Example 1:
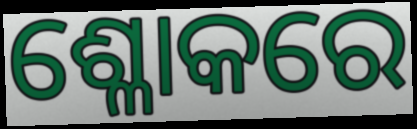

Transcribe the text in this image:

ଶ୍ଳୋକରେ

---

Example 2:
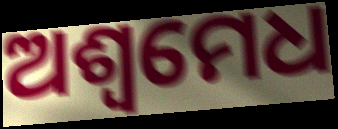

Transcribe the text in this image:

ଅଶ୍ଵମେଧ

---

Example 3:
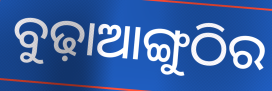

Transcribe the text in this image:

ବୁଢ଼ାଆଙ୍ଗୁଠିର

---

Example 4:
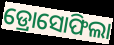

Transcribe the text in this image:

ଡ୍ରୋସୋଫିଲା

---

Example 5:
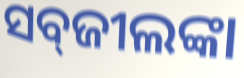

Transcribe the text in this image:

ସବ୍‌ଜୀଲଙ୍କା